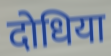
दोधिया